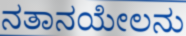
ನತಾನಯೇಲನು